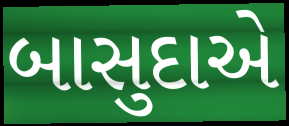
બાસુદાએ